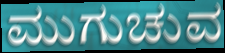
ಮುಗುಚುವ